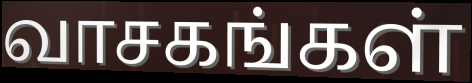
வாசகங்கள்